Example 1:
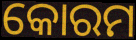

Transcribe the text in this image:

କୋରମ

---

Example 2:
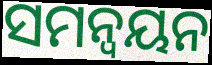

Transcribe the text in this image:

ସମନ୍ୱୟନ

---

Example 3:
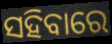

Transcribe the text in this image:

ସହିବାରେ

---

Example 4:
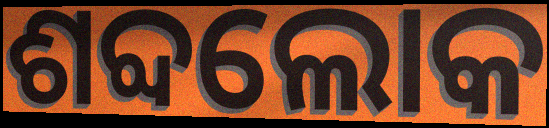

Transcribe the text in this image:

ଶବ୍ଦଲୋକ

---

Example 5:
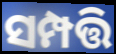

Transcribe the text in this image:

ସମ୍ପତ୍ତି